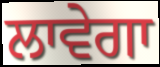
ਲਾਵੇਗਾ